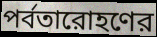
পর্বতারোহণের